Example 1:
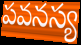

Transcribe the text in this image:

పవనస్య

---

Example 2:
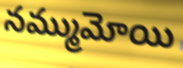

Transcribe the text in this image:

నమ్ముమోయి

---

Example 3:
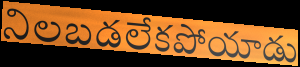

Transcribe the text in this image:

నిలబడలేకపోయాడు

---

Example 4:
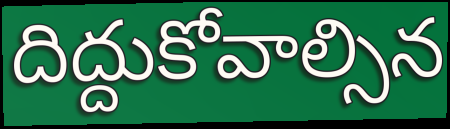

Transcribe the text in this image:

దిద్దుకోవాల్సిన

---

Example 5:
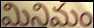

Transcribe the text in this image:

మినిమం